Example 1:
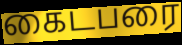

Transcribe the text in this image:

கைடபரை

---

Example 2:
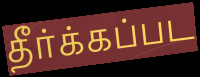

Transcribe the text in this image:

தீர்க்கப்பட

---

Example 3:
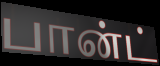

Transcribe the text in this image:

பான்ட்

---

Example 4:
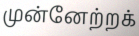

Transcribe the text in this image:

முன்னேற்றக்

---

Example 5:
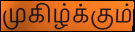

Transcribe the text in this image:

முகிழ்க்கும்